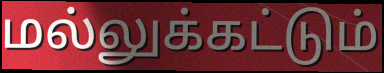
மல்லுக்கட்டும்